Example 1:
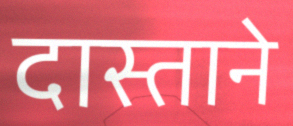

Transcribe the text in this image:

दास्ताने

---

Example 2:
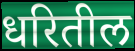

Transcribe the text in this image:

धरितील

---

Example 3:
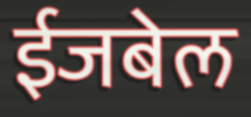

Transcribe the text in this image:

ईजबेल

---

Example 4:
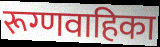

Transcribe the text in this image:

रूग्णवाहिका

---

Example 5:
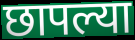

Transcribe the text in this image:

छापल्या